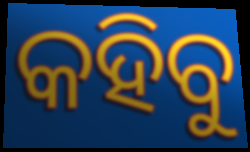
କହିବୁ